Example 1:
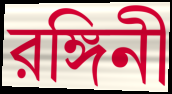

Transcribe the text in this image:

রঙ্গিনী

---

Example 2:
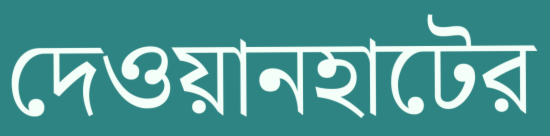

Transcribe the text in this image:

দেওয়ানহাটের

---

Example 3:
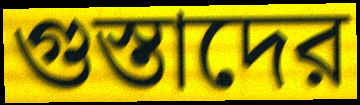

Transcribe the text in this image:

গুস্তাদের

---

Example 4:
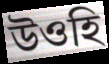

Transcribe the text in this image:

উওহি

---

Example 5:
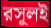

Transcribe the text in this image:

রসূলই